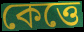
কেত্তে